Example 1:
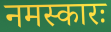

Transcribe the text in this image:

नमस्कारः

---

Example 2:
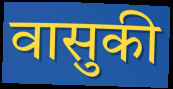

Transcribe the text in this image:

वासुकी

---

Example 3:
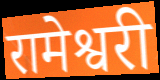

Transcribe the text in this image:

रामेश्वरी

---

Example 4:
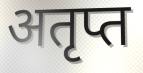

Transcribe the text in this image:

अतृप्त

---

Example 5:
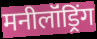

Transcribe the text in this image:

मनीलॉंड्रिंग